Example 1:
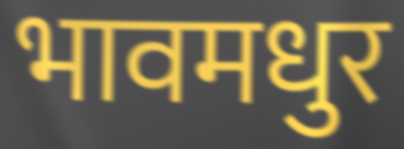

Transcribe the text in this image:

भावमधुर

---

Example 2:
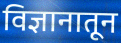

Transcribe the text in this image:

विज्ञानातून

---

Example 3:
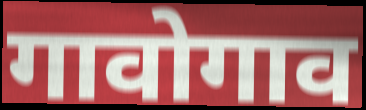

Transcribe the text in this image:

गावोगाव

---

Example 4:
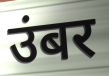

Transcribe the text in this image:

उंबर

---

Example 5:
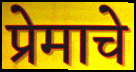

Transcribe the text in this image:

प्रेमाचे